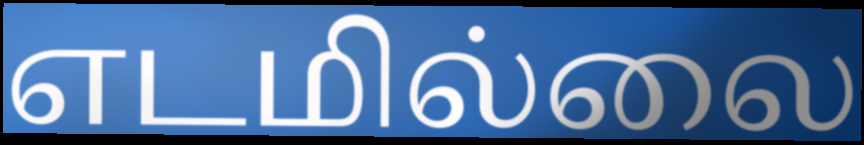
எடமில்லை